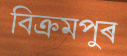
বিক্ৰমপুৰ